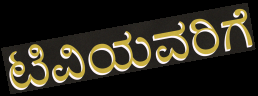
ಟಿವಿಯವರಿಗೆ